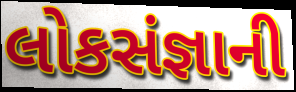
લોકસંજ્ઞાની